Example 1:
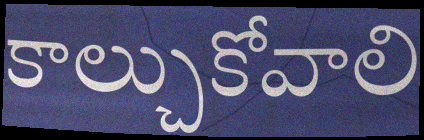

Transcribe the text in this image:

కాల్చుకోవాలి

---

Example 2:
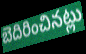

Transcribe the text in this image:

బెదిరించినట్లు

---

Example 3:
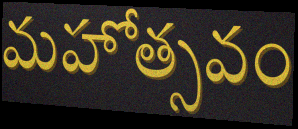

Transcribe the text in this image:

మహోత్సవం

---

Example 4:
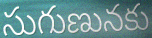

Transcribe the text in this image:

సుగుణునకు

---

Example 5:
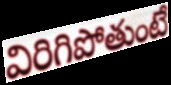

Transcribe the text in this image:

విరిగిపోతుంటే